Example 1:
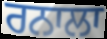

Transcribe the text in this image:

ਰਨਾਲਾ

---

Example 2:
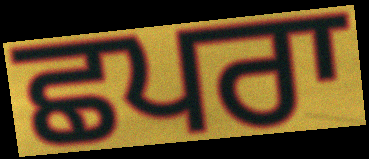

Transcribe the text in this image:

ਛਪਰਾ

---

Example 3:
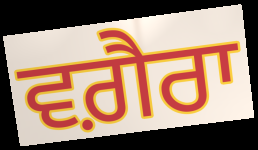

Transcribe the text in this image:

ਵਗ਼ੈਰਾ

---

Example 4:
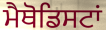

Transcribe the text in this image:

ਮੈਥੋਡਿਸਟਾਂ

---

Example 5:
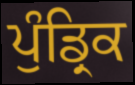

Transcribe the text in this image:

ਪੁੰਡ੍ਰਿਕ